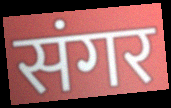
संगर